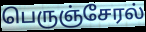
பெருஞ்சேரல்